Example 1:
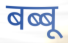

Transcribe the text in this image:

बब्बू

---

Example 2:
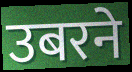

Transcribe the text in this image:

उबरने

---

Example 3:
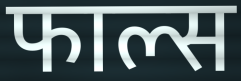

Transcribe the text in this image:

फाल्स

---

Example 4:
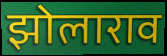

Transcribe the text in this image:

झोलाराव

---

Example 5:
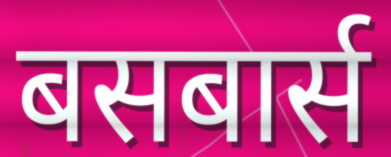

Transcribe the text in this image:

बसबार्स